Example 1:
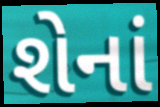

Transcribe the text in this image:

શેનાં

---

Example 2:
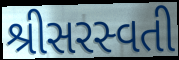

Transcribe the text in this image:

શ્રીસરસ્વતી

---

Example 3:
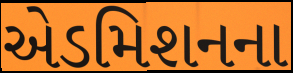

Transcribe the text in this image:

એડમિશનના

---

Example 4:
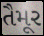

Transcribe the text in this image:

તૈમૂર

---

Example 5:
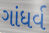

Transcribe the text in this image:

ગાંધર્વ